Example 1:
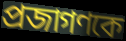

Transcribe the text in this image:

প্রজাগণকে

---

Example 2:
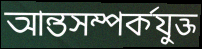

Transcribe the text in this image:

আন্তসম্পর্কযুক্ত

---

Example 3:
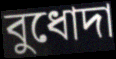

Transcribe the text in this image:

বুধোদা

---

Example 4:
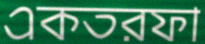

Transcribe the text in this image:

একতরফা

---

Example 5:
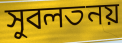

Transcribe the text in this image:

সুবলতনয়